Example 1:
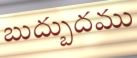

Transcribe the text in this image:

బుద్బుదము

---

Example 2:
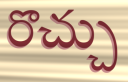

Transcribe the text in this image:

రొచ్చు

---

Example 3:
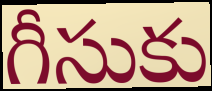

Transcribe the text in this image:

గీసుకు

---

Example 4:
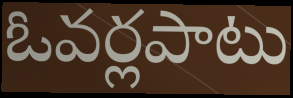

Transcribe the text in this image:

ఓవర్లపాటు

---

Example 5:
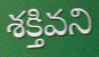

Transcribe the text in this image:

శక్తివని